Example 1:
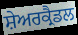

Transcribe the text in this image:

ਸ਼ੇਅਰਕ੍ਰੈਡਲ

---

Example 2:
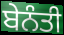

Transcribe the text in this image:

ਬੇਨੰਤੀ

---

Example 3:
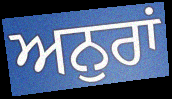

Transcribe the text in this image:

ਅਨੁਰਾਂ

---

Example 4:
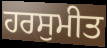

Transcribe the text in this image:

ਹਰਸੁਮੀਤ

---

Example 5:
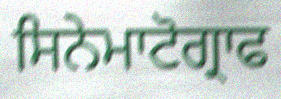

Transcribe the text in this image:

ਸਿਨੇਮਾਟੋਗ੍ਰਾਫ